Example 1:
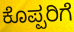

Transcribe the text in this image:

ಕೊಪ್ಪರಿಗೆ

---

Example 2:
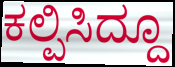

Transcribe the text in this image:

ಕಲ್ಪಿಸಿದ್ದೂ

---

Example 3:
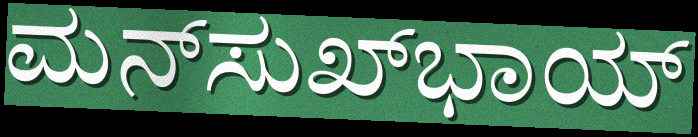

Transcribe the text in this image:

ಮನ್‌ಸುಖ್‌ಭಾಯ್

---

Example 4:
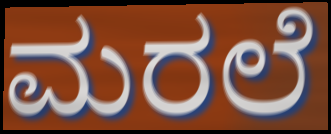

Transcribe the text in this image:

ಮರಲೆ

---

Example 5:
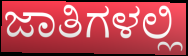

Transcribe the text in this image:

ಜಾತಿಗಳಲ್ಲಿ